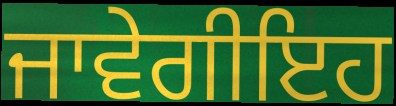
ਜਾਵੇਗੀਇਹ